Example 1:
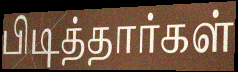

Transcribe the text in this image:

பிடித்தார்கள்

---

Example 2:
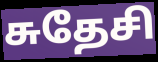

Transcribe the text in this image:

சுதேசி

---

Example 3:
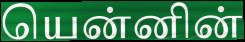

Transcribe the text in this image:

யென்னின்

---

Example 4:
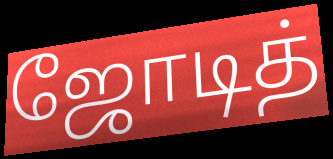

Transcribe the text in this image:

ஜோடித்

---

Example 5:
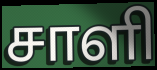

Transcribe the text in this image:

சாளி